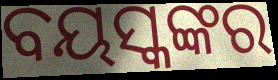
ବୟସ୍କଙ୍କର